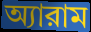
অ্যারাম